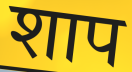
शाप